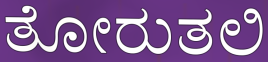
ತೋರುತಲಿ